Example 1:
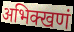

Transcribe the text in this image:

अभिक्खणं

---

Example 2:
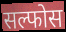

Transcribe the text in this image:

सल्फोस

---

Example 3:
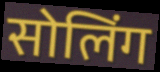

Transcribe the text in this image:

सोलिंग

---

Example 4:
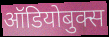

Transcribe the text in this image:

ऑडियोबुक्स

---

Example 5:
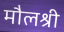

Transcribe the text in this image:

मौलश्री